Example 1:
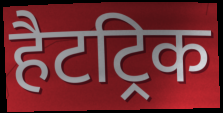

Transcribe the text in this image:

हैटट्रिक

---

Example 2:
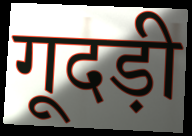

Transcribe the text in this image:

गूदड़ी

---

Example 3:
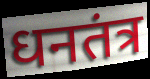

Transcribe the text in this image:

धनतंत्र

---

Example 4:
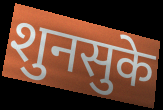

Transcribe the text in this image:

शुनसुके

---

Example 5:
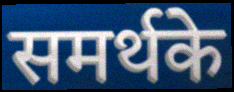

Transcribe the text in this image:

समर्थके